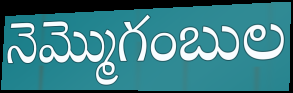
నెమ్మొగంబుల